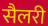
सैलरी